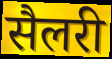
सैलरी